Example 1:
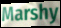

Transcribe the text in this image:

Marshy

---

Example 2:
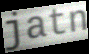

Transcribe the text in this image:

jatn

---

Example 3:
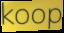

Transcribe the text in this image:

koop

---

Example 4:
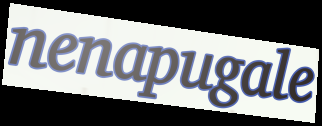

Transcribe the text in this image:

nenapugale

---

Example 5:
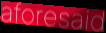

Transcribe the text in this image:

aforesaid